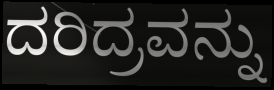
ದರಿದ್ರವನ್ನು